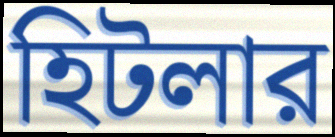
হিটলার